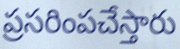
ప్రసరింపచేస్తారు